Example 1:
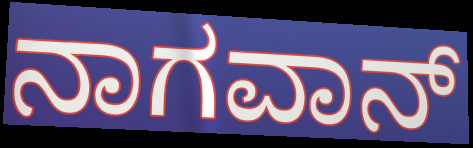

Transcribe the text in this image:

ನಾಗವಾನ್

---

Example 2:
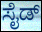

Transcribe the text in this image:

ಸೈಡ್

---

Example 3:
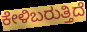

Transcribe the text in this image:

ಕೇಳಿಬರುತ್ತಿದೆ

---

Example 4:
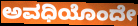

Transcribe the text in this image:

ಅವಧಿಯೊಂದೇ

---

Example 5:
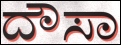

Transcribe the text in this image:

ದೌಸಾ